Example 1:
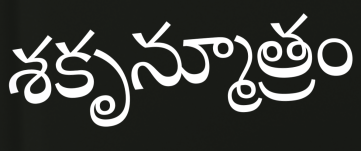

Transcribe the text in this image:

శకృన్మూత్రం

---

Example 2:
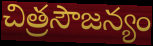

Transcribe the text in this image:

చిత్రసౌజన్యం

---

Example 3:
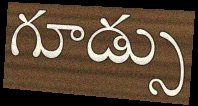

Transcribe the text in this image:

గూడ్సు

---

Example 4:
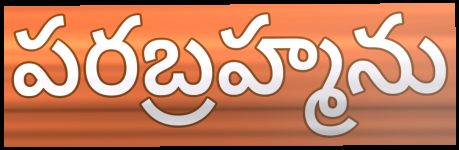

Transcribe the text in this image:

పరబ్రహ్మను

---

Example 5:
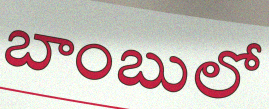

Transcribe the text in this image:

బాంబులో